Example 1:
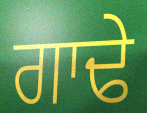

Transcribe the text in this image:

ਗਾਢੇ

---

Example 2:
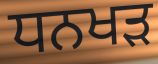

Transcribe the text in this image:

ਧਨਖਡ਼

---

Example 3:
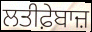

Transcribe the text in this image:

ਲਤੀਫ਼ੇਬਾਜ਼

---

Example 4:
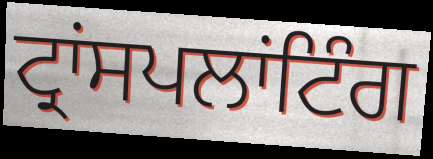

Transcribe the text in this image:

ਟ੍ਰਾਂਸਪਲਾਂਟਿੰਗ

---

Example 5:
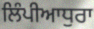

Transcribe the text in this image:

ਲਿੰਪੀਆਧੁਰਾ